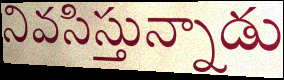
నివసిస్తున్నాడు